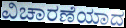
ವಿಚಾರಣೆಯಾದ